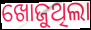
ଖୋଜୁଥିଲା